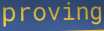
proving